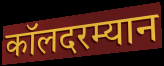
कॉलदरम्यान